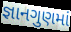
જ્ઞાનગુણમાં